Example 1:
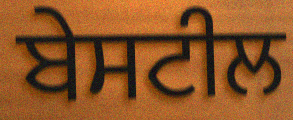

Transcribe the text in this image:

ਬੇਸਟੀਲ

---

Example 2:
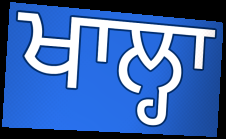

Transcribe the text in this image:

ਖਾਲ੍ਹਾ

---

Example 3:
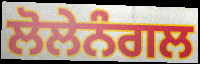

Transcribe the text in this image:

ਲੋਲੇਨੰਗਲ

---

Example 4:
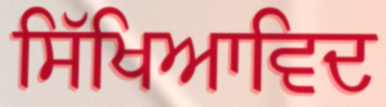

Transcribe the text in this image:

ਸਿੱਖਿਆਵਿਦ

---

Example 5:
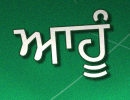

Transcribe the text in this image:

ਆਹੂੰ